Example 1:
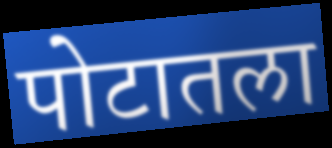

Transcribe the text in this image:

पोटातला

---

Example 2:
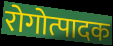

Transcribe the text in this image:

रोगोत्पादक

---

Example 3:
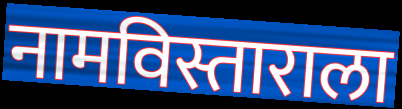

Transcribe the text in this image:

नामविस्ताराला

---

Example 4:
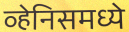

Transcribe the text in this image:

व्हेनिसमध्ये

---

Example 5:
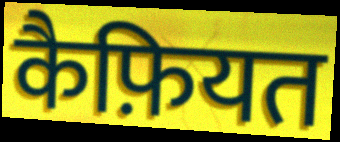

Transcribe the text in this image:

कैफ़ियत